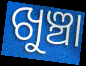
ଖୁଞ୍ଚା